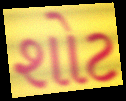
શોટ